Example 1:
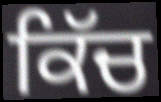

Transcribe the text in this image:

ਕਿੱਚ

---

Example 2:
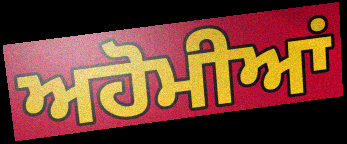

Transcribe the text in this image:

ਅਹੋਮੀਆਂ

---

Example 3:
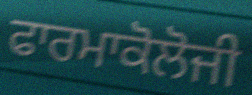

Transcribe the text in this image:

ਫਾਰਮਾਕੋਲੋਜੀ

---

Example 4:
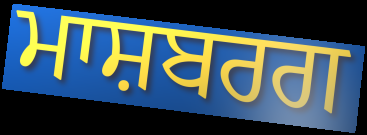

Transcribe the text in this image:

ਮਾਸ਼ਬਰਗ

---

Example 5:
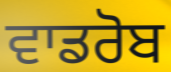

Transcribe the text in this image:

ਵਾਡਰੋਬ